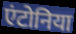
एंटोनिया